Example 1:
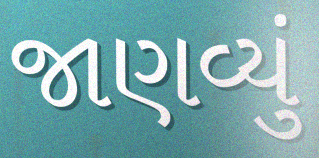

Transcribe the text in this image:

જાણવ્યું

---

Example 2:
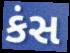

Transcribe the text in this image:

કંસ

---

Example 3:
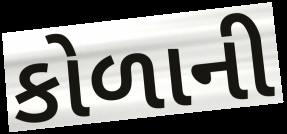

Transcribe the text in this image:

કોળાની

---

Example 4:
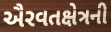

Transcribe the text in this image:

ઐરવતક્ષેત્રની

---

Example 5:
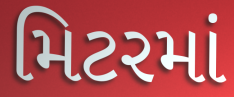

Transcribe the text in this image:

મિટરમાં